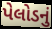
પેલોડનું